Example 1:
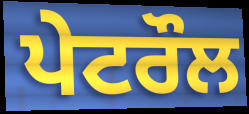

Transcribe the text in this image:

ਪੇਟਰੌਲ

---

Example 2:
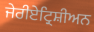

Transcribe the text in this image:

ਜੇਰੀਏਟ੍ਰਿਸ਼ੀਅਨ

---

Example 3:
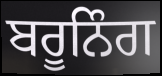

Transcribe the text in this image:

ਬਰੂਨਿੰਗ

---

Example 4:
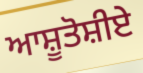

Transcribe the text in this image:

ਆਸ਼ੂਤੋਸ਼ੀਏ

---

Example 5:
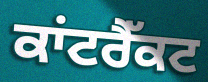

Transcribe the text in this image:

ਕਾਂਟਰੈੱਕਟ